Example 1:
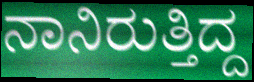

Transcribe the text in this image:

ನಾನಿರುತ್ತಿದ್ದ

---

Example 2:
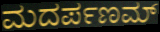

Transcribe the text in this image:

ಮದರ್ಪಣಮ್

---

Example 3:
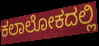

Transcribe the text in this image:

ಕಲಾಲೋಕದಲ್ಲಿ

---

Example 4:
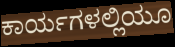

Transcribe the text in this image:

ಕಾರ್ಯಗಳಲ್ಲಿಯೂ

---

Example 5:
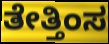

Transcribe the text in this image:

ತೇತ್ತಿಂಸ